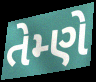
તેમ્ણે